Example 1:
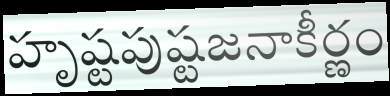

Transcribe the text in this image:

హృష్టపుష్టజనాకీర్ణం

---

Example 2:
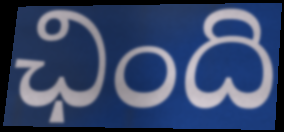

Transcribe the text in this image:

ఛింది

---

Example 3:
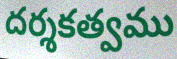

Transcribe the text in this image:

దర్శకత్వము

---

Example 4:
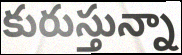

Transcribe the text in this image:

కురుస్తున్నా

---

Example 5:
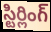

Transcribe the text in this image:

స్టిర్లింగ్